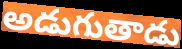
అడుగుతాడు